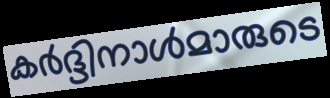
കർദ്ദിനാൾമാരുടെ